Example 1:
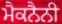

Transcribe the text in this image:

ਮੈਕਨੈਨੀ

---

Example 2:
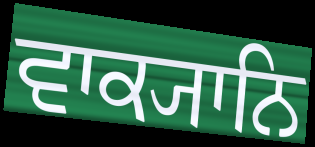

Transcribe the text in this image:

ਵਾਕ੍ਯਾਨਿ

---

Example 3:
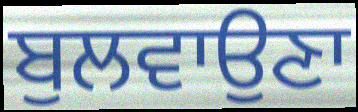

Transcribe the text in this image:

ਬੁਲਵਾਉਣਾ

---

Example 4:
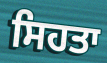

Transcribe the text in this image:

ਸਿਹਤਾ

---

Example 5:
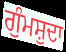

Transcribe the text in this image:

ਗੁੰਮਸ਼ੁਦਾ